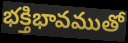
భక్తిభావముతో